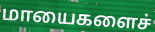
மாயைகளைச்